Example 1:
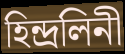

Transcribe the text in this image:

হিন্দ্রলিনী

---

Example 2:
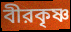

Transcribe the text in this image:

বীরকৃষ্ণ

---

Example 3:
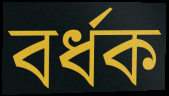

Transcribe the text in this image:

বর্ধক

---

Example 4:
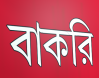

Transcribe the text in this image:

বাকরি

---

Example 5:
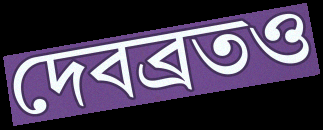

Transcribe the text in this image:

দেবব্রতও